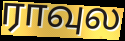
ராவுல